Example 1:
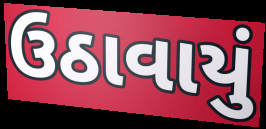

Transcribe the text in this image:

ઉઠાવાયું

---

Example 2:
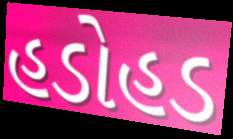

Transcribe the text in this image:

હડોહડ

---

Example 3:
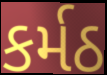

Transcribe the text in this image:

કર્મઠ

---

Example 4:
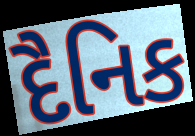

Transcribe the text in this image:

દૈનિક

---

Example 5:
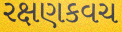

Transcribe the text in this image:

રક્ષણકવચ